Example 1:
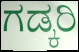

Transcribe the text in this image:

ಗಡ್ಕರಿ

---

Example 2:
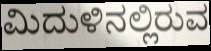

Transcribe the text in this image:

ಮಿದುಳಿನಲ್ಲಿರುವ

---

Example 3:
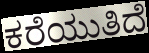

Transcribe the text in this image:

ಕರೆಯುತಿದೆ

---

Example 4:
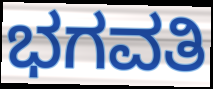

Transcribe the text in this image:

ಭಗವತಿ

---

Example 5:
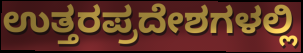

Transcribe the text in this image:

ಉತ್ತರಪ್ರದೇಶಗಳಲ್ಲಿ